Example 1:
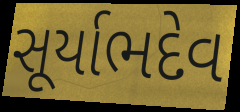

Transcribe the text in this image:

સૂર્યાભદેવ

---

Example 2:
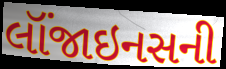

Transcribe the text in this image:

લૉંજાઇનસની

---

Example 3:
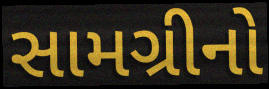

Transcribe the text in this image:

સામગ્રીનો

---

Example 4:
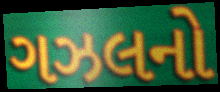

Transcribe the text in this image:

ગઝલનો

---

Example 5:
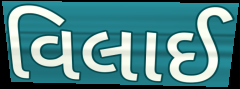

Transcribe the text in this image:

વિલાઈ